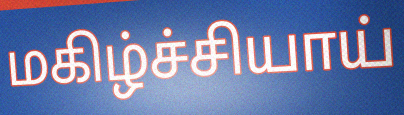
மகிழ்ச்சியாய்